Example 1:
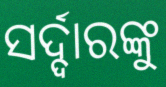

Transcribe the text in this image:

ସର୍ଦ୍ଦାରଙ୍କୁ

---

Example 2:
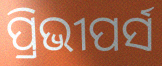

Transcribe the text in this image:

ପ୍ରିଭୀପର୍ସ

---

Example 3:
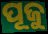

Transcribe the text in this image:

ପୂଜୁ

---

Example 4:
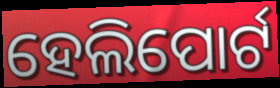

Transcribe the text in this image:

ହେଲିପୋର୍ଟ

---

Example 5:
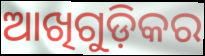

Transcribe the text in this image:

ଆଖିଗୁଡ଼ିକର